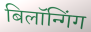
बिलॉन्गिंग